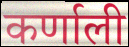
कर्णाली